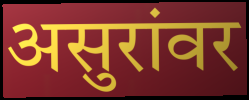
असुरांवर